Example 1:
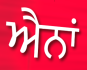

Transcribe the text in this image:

ਐਨਾਂ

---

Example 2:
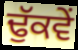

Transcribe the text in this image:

ਢੁੱਕਵੇਂ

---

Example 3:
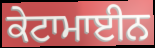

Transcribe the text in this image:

ਕੇਟਾਮਾਈਨ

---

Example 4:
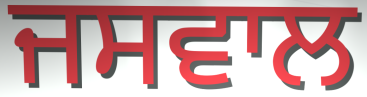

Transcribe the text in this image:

ਜਸਵਾਲ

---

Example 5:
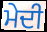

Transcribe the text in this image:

ਮੇਦੀ